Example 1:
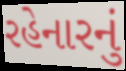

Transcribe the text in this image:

રહેનારનું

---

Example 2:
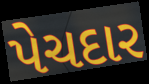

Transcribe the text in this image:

પેચદાર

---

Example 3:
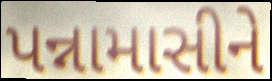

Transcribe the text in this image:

પન્નામાસીને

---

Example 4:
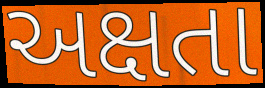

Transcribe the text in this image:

અક્ષતા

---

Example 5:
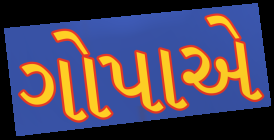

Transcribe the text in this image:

ગોપાએ